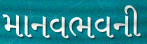
માનવભવની